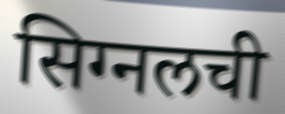
सिग्नलची